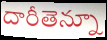
దారీతెన్నూ